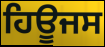
ਹਿਊਜਸ